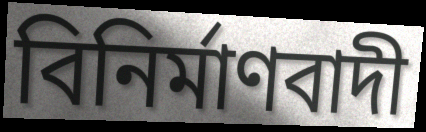
বিনিৰ্মাণবাদী